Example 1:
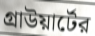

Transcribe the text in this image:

গ্রাউয়ার্টের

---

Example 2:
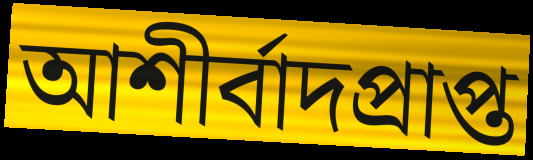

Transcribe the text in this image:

আশীর্বাদপ্রাপ্ত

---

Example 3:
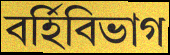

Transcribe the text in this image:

বর্হিবিভাগ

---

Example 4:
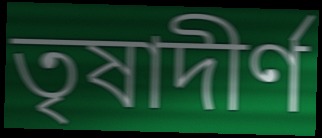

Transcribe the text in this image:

তৃষাদীর্ণ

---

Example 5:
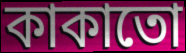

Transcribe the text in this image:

কাকাতো